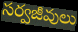
సర్వజీవులు